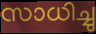
സാധിച്ചു